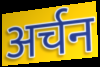
अर्चन